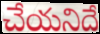
చేయనిదే